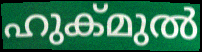
ഹുക്മുൽ